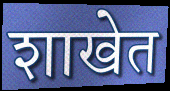
शाखेत